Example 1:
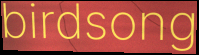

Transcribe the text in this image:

birdsong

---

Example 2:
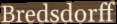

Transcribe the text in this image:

Bredsdorff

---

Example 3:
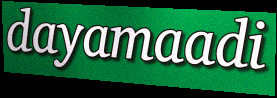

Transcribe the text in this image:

dayamaadi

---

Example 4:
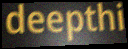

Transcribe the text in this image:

deepthi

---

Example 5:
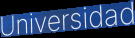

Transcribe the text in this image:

Universidad